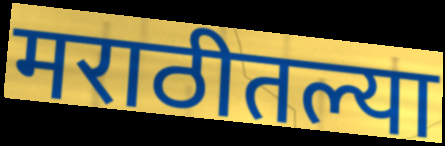
मराठीतल्या